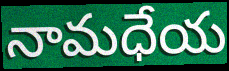
నామధేయ